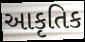
આકૃતિક